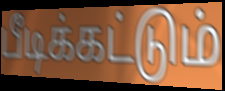
பீடிக்கட்டும்